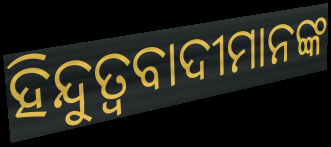
ହିନ୍ଦୁତ୍ଵବାଦୀମାନଙ୍କ